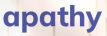
apathy